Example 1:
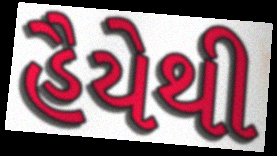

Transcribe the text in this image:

હૈયેથી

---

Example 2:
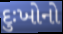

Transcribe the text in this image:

દુઃખોનો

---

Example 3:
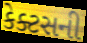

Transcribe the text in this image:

કેક્ટસની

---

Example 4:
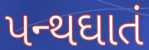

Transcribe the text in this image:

પન્થઘાતં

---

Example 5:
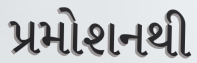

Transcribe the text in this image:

પ્રમોશનથી